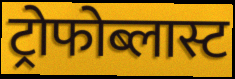
ट्रोफोब्लास्ट